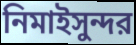
নিমাইসুন্দর